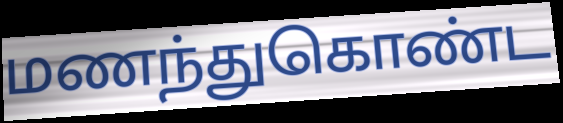
மணந்துகொண்ட